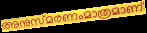
അനുസ്മരണംമാത്രമാണ്